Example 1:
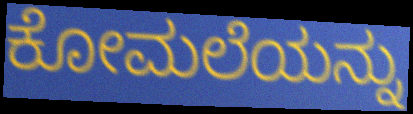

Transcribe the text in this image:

ಕೋಮಲೆಯನ್ನು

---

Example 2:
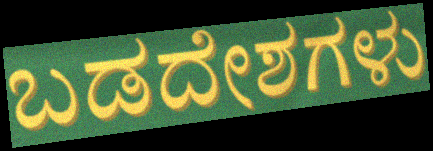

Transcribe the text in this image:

ಬಡದೇಶಗಳು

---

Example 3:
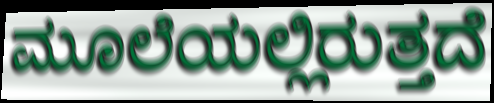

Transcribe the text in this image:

ಮೂಲೆಯಲ್ಲಿರುತ್ತದೆ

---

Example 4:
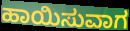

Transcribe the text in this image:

ಹಾಯಿಸುವಾಗ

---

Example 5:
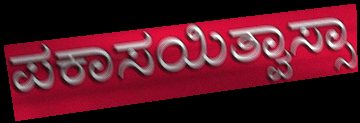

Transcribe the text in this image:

ಪಕಾಸಯಿತ್ವಾಸ್ಸಾ